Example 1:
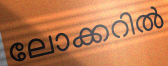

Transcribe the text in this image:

ലോക്കറിൽ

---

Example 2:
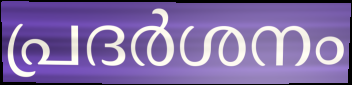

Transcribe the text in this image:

പ്രദർശനം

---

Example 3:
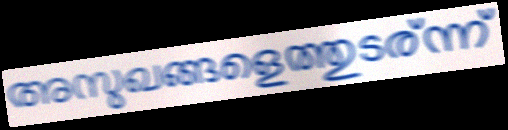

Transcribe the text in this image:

അസുഖങ്ങളെത്തുടര്ന്ന്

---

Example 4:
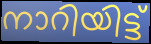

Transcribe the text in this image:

നാറിയിട്ട്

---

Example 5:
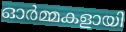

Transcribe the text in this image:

ഓർമ്മകളായി